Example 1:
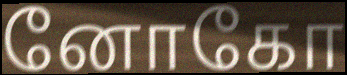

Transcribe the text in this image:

னோகோ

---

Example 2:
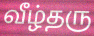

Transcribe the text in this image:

வீழ்தரு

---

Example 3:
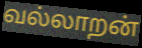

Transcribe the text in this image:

வல்லாறன்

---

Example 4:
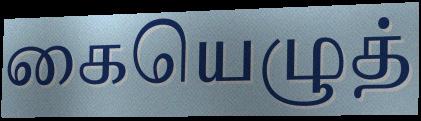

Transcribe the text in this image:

கையெழுத்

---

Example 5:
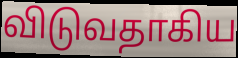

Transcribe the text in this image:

விடுவதாகிய